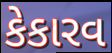
કેકારવ